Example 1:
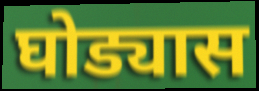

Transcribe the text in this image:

घोड्यास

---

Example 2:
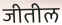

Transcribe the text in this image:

जीतील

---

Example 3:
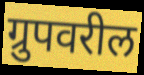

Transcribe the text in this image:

ग्रुपवरील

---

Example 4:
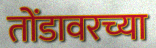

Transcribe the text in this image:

तोंडावरच्या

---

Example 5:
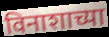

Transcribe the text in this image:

विनाशाच्या